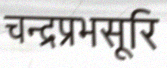
चन्द्रप्रभसूरि